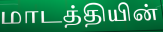
மாடத்தியின்